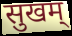
सुखम्